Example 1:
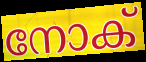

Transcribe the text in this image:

നോക്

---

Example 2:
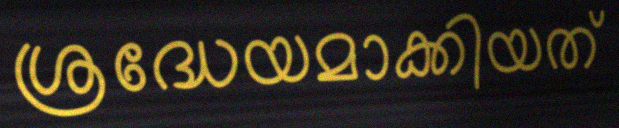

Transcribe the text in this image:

ശ്രദ്ധേയമാക്കിയത്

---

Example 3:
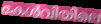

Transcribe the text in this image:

കേൾവിയിലെ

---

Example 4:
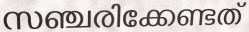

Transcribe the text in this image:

സഞ്ചരിക്കേണ്ടത്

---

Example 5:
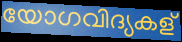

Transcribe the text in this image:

യോഗവിദ്യകള്